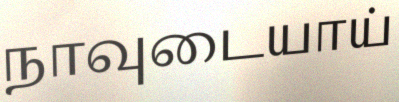
நாவுடையாய்